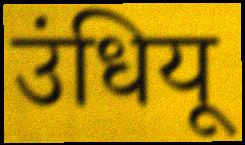
उंधियू